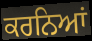
ਕਰਨਿਆਂ